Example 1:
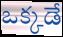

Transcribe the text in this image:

ఒక్కడే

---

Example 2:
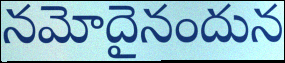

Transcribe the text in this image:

నమోదైనందున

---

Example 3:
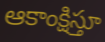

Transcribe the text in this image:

ఆకాంక్షిస్తూ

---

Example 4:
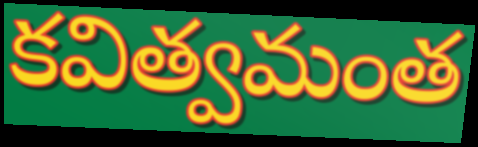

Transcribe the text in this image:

కవిత్వమంత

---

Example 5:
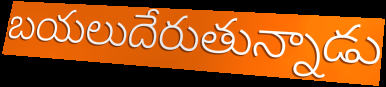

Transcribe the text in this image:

బయలుదేరుతున్నాడు